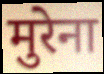
मुरेना